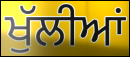
ਖੁੱਲੀਆਂ